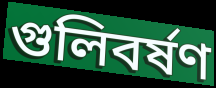
গুলিবর্ষণ